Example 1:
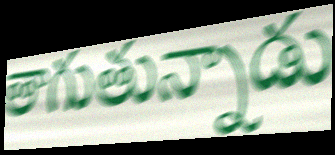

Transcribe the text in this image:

తాగుతున్నాడు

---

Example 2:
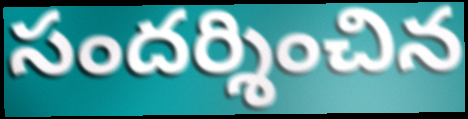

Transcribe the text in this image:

సందర్శించిన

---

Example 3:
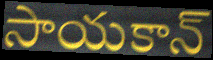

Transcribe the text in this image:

సాయకాన్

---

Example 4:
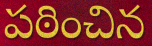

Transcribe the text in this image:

పఠించిన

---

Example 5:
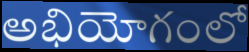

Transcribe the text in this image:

అభియోగంలో